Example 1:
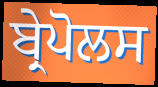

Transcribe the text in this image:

ਬ੍ਰੇਪੋਲਸ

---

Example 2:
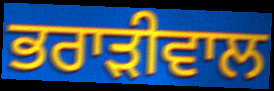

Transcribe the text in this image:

ਭਰਾੜੀਵਾਲ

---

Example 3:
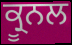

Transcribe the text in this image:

ਕ੍ਰੂਨਲ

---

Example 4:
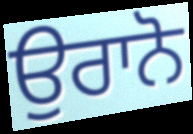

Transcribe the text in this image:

ਉਰਾਨੋ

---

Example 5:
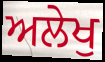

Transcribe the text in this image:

ਅਲੇਖੁ